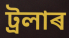
ট্ৰলাৰ